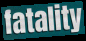
fatality